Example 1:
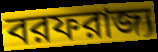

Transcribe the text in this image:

বরফরাজ্য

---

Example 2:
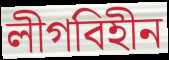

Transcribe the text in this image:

লীগবিহীন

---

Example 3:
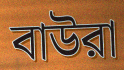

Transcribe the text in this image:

বাউরা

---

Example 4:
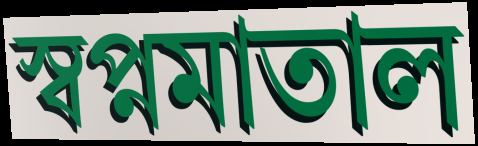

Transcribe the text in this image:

স্বপ্নমাতাল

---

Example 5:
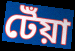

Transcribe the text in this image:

টেঁয়া